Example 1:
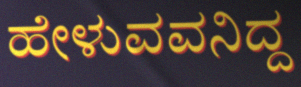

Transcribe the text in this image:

ಹೇಳುವವನಿದ್ದ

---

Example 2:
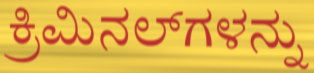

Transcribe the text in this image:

ಕ್ರಿಮಿನಲ್‍ಗಳನ್ನು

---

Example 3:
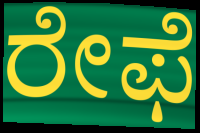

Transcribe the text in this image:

ರೇಫೆ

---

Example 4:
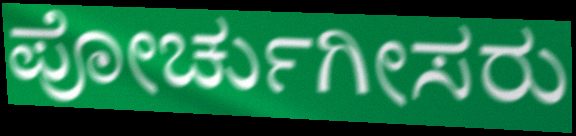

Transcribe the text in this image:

ಪೋರ್ಚುಗೀಸರು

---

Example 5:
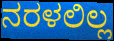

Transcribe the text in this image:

ನರಳಲಿಲ್ಲ